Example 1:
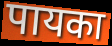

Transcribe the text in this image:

पायका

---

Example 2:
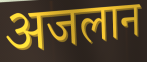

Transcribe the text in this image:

अजलान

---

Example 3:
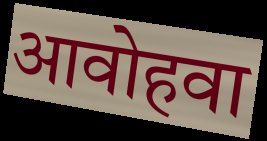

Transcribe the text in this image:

आवोहवा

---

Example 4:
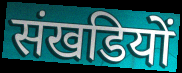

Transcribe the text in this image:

संखडियों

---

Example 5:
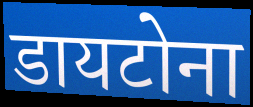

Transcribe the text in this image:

डायटोना